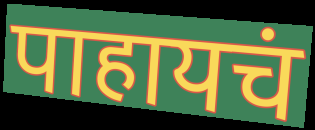
पाहायचं